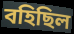
বহিছিল